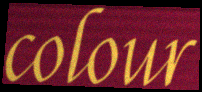
colour